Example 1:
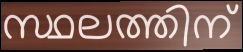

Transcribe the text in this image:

സ്ഥലത്തിന്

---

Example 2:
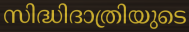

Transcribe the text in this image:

സിദ്ധിദാത്രിയുടെ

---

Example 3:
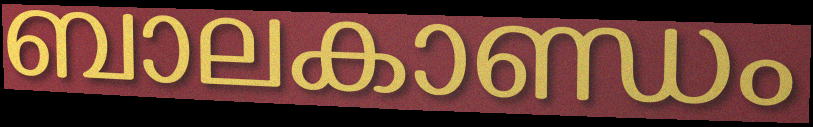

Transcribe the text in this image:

ബാലകാണ്ഡം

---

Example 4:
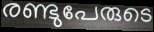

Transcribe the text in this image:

രണ്ടുപേരുടെ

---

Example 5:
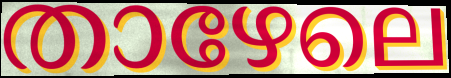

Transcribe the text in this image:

താഴേലെ